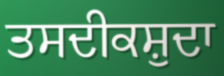
ਤਸਦੀਕਸ਼ੁਦਾ